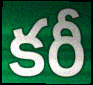
కరీ